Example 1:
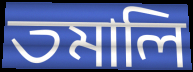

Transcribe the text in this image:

তমালি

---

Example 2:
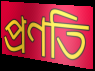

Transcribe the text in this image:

প্রণতি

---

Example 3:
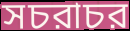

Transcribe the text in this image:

সচরাচর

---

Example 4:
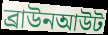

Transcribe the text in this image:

ব্রাউনআউট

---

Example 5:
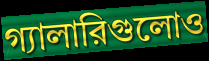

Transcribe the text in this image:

গ্যালারিগুলোও